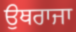
ਉਥਰਾਜਾ